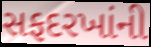
સફદરખાંની